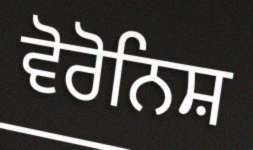
ਵੋਰੋਨਿਸ਼